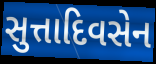
સુત્તાદિવસેન